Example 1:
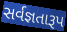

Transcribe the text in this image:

સર્વજ્ઞતારૂપ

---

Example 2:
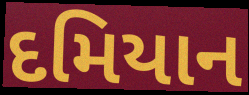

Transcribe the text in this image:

દમિયાન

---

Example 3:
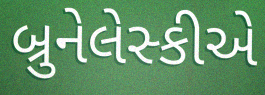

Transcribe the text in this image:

બ્રુનેલેસ્કીએ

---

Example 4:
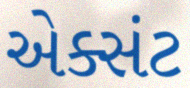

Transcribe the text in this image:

એક્સંટ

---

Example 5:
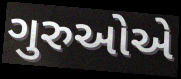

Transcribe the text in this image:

ગુરુઓએ